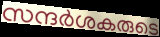
സന്ദർശകരുടെ